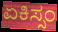
ಏಕಿಸ್ಸಂ